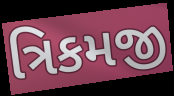
ત્રિકમજી